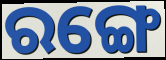
ରଙ୍ଗେ